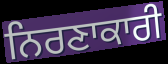
ਨਿਰਣਾਕਾਰੀ